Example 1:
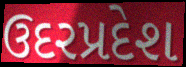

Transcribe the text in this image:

ઉદરપ્રદેશ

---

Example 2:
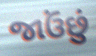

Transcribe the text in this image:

જાઉંછું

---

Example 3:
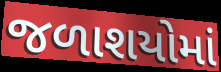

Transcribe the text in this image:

જળાશયોમાં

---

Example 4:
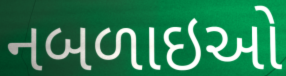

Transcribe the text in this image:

નબળાઇઓ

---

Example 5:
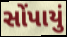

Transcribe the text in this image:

સોંપાયું